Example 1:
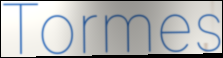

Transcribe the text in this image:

Tormes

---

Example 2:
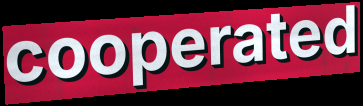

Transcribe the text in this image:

cooperated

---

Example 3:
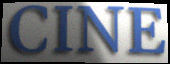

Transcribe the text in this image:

CINE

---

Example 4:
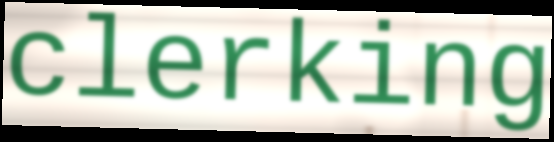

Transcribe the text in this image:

clerking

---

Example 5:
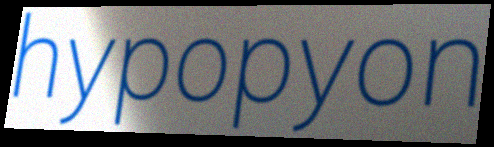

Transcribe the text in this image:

hypopyon